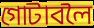
গোটাবলৈ